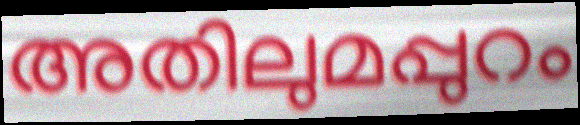
അതിലുമപ്പുറം